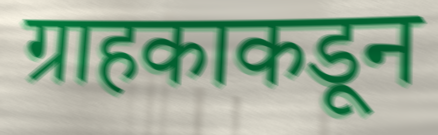
ग्राहकाकडून